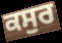
ਕਸੁਰ